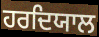
ਹਰਦਿਯਾਲ